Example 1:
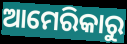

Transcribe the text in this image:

ଆମେରିକାରୁ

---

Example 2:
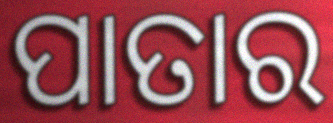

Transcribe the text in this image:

ପାତାର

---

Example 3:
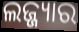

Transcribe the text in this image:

ଲଜ୍ଜ୍ୟାର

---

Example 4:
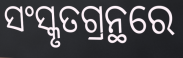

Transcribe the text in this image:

ସଂସ୍କୃତଗ୍ରନ୍ଥରେ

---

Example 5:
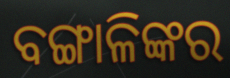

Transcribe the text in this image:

ବଙ୍ଗାଳିଙ୍କର